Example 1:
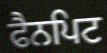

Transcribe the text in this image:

ਫੈਨਪਿਟ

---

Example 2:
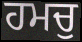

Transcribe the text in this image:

ਹਮਚੁ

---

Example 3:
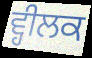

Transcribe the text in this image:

ਵ੍ਹੀਲਕ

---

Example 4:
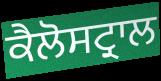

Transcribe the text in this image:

ਕੈਲੋਸਟ੍ਰਾਲ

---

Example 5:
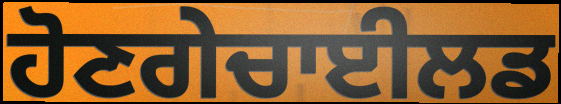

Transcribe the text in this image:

ਹੋਣਗੇਚਾਈਲਡ